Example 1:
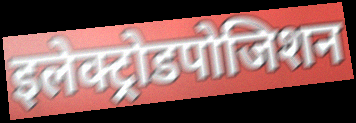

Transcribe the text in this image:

इलेक्ट्रोडपोजिशन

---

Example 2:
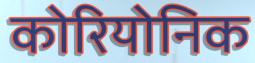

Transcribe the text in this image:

कोरियोनिक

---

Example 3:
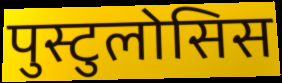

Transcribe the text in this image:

पुस्टुलोसिस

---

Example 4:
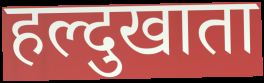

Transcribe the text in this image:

हल्दुखाता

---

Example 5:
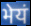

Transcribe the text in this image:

भेयं